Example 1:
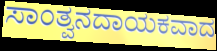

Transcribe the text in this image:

ಸಾಂತ್ವನದಾಯಕವಾದ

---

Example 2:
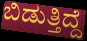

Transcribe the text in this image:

ಬಿಡುತ್ತಿದ್ದೆ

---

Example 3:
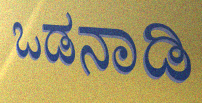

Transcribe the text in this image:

ಒಡನಾಡಿ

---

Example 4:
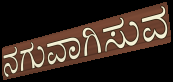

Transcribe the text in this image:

ನಗುವಾಗಿಸುವ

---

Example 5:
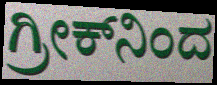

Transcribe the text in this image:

ಗ್ರೀಕ್‌ನಿಂದ